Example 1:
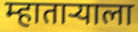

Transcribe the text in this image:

म्हाताऱ्याला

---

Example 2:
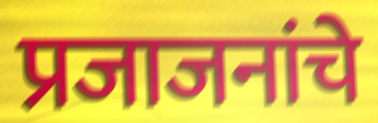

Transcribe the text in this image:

प्रजाजनांचे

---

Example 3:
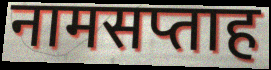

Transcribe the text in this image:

नामसप्ताह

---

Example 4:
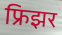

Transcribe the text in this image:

फ्रिझर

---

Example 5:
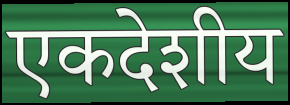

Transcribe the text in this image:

एकदेशीय